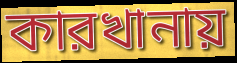
কারখানায়